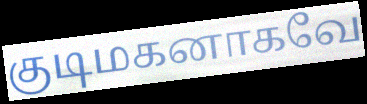
குடிமகனாகவே